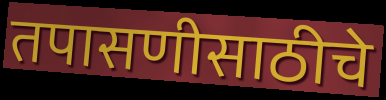
तपासणीसाठीचे